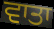
ਵਾਤਾ